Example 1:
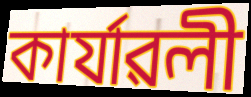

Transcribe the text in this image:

কাৰ্যাৱলী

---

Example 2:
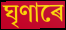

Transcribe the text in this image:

ঘৃণাৰে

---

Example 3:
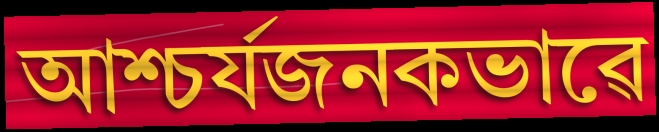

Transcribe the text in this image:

আশ্চৰ্যজনকভাৱে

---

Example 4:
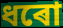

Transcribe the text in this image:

ধৰো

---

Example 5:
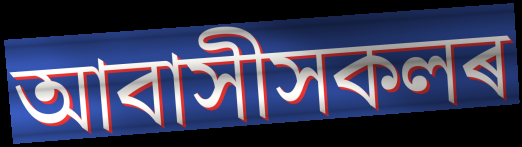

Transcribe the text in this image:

আবাসীসকলৰ